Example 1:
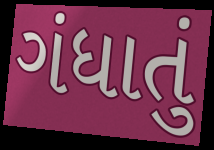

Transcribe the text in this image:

ગંધાતું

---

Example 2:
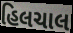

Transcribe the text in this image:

હિલચાલ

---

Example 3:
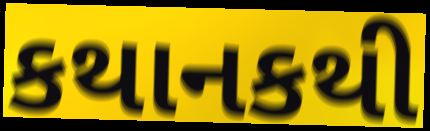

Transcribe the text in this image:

કથાનકથી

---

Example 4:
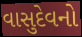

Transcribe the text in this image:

વાસુદેવનો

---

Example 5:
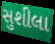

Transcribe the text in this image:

સુશીલા